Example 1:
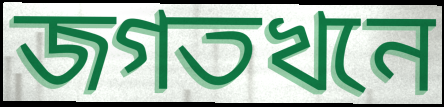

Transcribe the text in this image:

জগতখনে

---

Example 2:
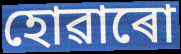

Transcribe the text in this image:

হোৱাৰো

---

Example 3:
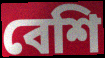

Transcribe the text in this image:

বেশি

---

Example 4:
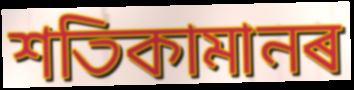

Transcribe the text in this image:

শতিকামানৰ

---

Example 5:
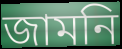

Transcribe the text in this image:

জামনি